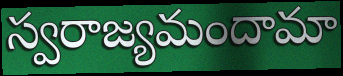
స్వరాజ్యమందామా